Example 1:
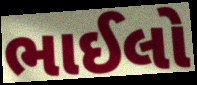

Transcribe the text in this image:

ભાઈલો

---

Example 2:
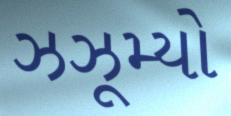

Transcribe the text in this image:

ઝઝૂમ્યો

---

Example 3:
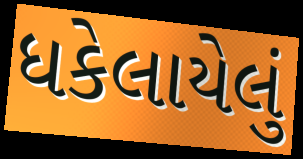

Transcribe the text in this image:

ધકેલાયેલું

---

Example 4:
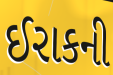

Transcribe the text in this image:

ઈરાકની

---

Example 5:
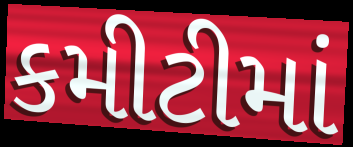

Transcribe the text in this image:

કમીટીમાં